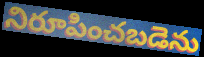
నిరూపించబడెను